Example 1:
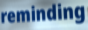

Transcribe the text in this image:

reminding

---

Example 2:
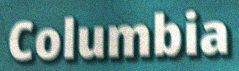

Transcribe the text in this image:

Columbia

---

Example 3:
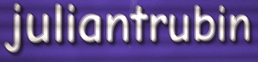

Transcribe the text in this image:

juliantrubin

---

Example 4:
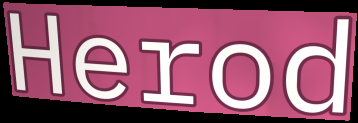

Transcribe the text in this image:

Herod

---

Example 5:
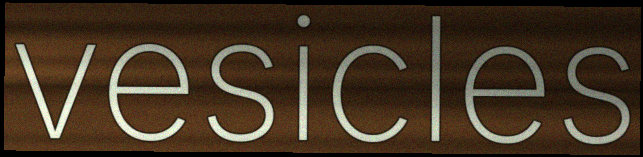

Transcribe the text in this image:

vesicles